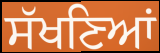
ਸੱਖਣਿਆਂ